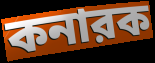
কনারক